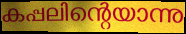
കപ്പലിന്റെയാന്നു